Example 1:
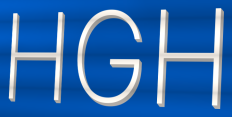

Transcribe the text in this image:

HGH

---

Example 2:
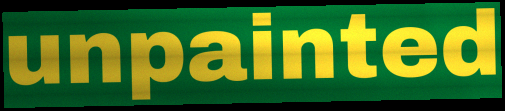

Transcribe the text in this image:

unpainted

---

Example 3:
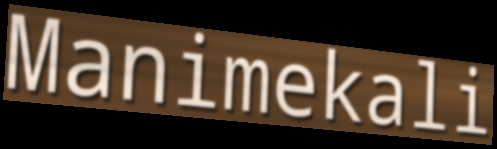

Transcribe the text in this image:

Manimekali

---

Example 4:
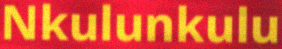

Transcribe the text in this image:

Nkulunkulu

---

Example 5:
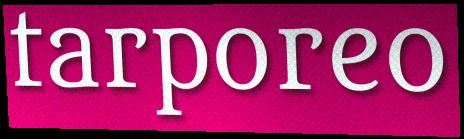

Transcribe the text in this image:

tarporeo